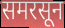
समरसून